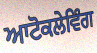
ਆਟੋਕਲੇਵਿੰਗ